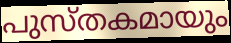
പുസ്തകമായും